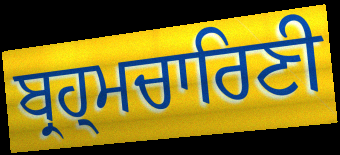
ਬ੍ਰਹ੍ਮਚਾਰਿਣੀ